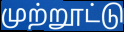
முற்றூட்டு